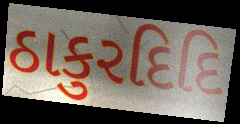
ઠાકુરદિદિ